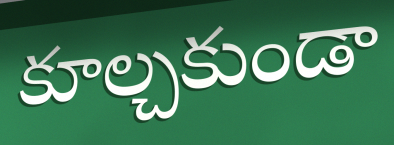
కూల్చకుండా